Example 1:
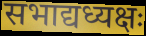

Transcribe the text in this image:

सभाद्यध्यक्षः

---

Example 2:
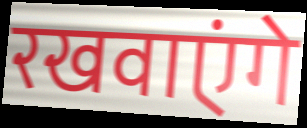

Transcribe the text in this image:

रखवाएंगे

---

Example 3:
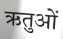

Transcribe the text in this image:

ऋतुओं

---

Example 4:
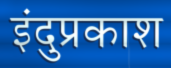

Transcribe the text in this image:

इंदुप्रकाश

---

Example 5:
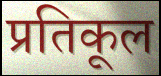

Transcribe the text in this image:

प्रतिकूल